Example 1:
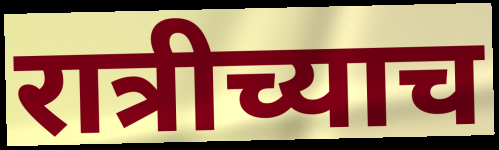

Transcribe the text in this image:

रात्रीच्याच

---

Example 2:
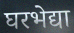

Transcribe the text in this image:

घरभेद्या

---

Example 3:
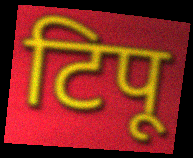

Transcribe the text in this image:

टिपू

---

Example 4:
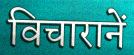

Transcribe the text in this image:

विचारानें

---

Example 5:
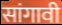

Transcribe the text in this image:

सांगावी